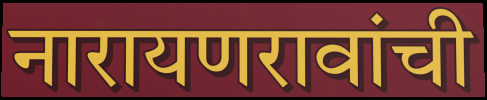
नारायणरावांची